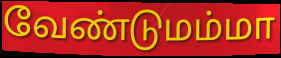
வேண்டுமம்மா